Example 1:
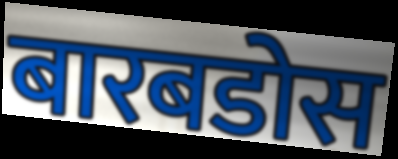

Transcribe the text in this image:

बारबडोस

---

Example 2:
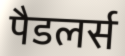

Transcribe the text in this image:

पैडलर्स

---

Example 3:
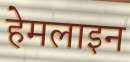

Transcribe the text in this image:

हेमलाइन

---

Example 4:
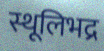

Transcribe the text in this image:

स्थूलिभद्र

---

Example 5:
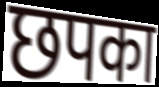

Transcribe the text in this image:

छपका